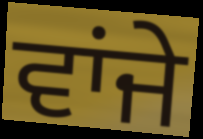
ਵਾਂਜੇ